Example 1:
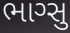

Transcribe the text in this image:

ભાગ્સુ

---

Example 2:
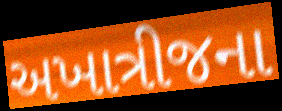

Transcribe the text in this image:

અખાત્રીજના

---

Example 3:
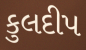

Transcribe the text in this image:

કુલદીપ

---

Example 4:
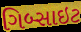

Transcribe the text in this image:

ગિબ્સાઇટ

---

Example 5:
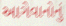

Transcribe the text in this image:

આગેવાનોનું